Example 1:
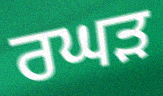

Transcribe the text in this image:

ਰਘੜ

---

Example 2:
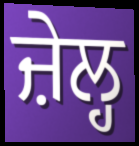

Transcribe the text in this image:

ਜ਼ੇਲ੍ਹ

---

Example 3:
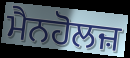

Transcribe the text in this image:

ਮੈਨਹੋਲਜ਼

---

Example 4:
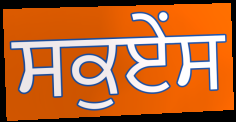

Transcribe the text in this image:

ਸਕੁਏਂਸ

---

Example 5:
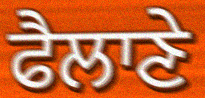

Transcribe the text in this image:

ਫੈਲਾਣੇ